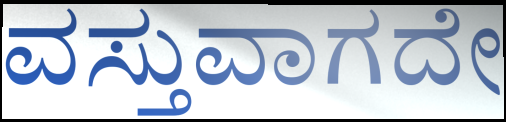
ವಸ್ತುವಾಗದೇ